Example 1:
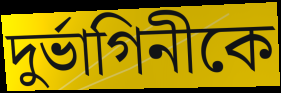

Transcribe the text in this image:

দুর্ভাগিনীকে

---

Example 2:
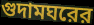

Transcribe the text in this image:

গুদামঘরের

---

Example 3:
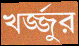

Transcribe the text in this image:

খর্জ্জুর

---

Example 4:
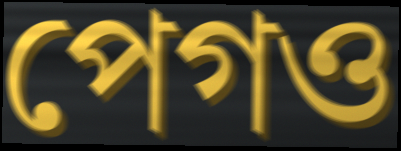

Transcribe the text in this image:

পেগও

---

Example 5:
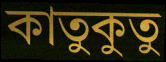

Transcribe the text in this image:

কাতুকুতু